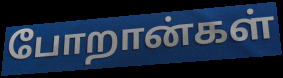
போறான்கள்